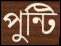
পুন্টি